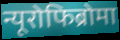
न्यूरोफिब्रोमा